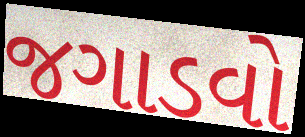
જગાડવો